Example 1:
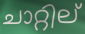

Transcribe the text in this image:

ചാറ്റില്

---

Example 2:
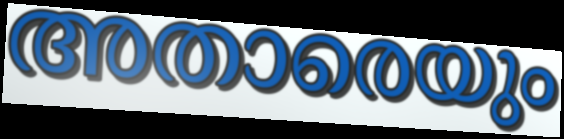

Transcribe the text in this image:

അതാരെയും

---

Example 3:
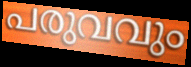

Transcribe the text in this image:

പരുവവും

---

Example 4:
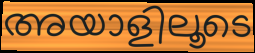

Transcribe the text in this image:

അയാളിലൂടെ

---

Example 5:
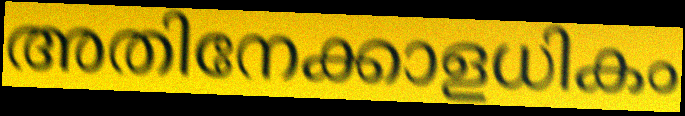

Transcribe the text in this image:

അതിനേക്കാളധികം